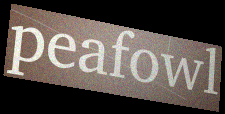
peafowl